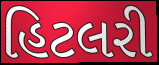
હિટલરી